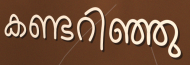
കണ്ടറിഞ്ഞു